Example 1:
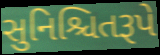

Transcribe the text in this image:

સુનિશ્ચિતરૂપે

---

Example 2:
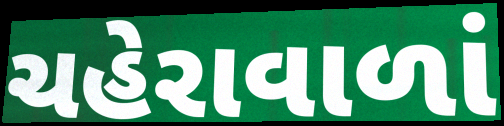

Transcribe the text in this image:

ચહેરાવાળાં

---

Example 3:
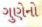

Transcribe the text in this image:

ગુણેનો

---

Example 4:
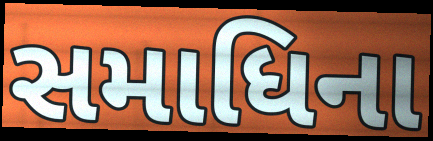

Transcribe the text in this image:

સમાધિના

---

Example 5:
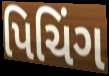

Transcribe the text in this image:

પિચિંગ